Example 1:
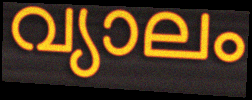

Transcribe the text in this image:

വ്യാലം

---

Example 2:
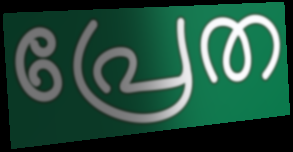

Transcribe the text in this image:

പ്രേത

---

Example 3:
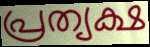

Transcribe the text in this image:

പ്രത്യക്ഷ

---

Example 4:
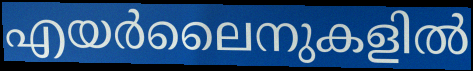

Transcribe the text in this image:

എയർലൈനുകളിൽ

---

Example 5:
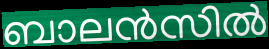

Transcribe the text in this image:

ബാലൻസിൽ